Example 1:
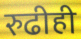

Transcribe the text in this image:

रुढीही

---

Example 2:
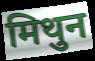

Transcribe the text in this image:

मिथुन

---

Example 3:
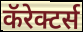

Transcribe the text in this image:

कॅरेक्टर्स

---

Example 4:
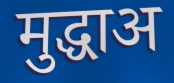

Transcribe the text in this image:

मुद्धाअ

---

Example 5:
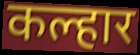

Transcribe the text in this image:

कल्हार